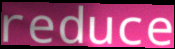
reduce